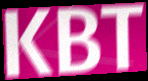
KBT